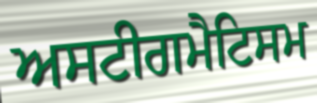
ਅਸਟੀਗਮੈਟਿਸਮ